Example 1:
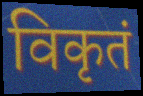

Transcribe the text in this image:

विकृतं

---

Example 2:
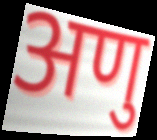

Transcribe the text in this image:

अणु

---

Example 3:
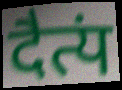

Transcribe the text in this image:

दैत्यं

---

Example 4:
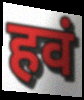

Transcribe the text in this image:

हवं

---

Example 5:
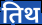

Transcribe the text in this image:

तिथ